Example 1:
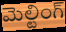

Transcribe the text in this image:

మెల్టింగ్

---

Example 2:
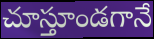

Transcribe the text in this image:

చూస్తూండగానే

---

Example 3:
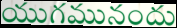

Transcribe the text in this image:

యుగమునందు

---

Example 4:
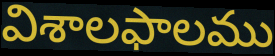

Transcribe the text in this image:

విశాలఫాలము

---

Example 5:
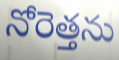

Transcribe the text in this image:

నోరెత్తను